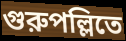
গুরুপল্লিতে